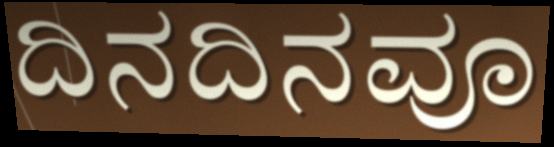
ದಿನದಿನವೂ